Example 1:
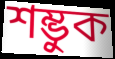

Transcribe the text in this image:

শম্ভুক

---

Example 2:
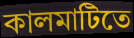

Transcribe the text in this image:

কালমাটিতে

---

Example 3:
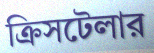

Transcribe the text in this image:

ক্রিসটেলার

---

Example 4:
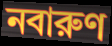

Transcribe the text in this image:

নবারুণ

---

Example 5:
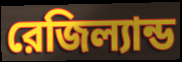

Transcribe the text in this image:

রেজিল্যান্ড